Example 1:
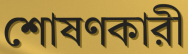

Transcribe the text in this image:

শোষণকারী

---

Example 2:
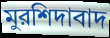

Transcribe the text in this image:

মুরশিদাবাদ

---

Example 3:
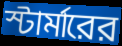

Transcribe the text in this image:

স্টার্মারের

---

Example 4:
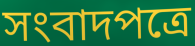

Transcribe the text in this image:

সংবাদপত্রে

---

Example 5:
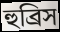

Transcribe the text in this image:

হুব্রিস